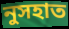
নুসহাত